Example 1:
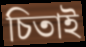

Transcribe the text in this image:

চিতাই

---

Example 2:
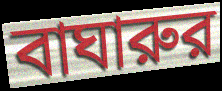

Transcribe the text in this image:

বাঘারুর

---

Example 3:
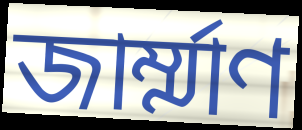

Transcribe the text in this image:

জার্ম্মাণ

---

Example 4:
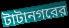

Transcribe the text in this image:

টাটানগরের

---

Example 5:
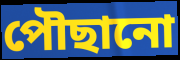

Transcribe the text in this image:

পৌছানো